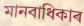
মানবাধিকাৰ